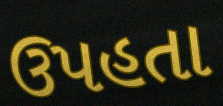
ઉપહતા